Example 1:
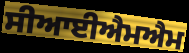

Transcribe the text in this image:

ਸੀਆਈਐਮਐਮ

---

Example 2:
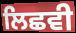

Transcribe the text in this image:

ਲਿਛਵੀ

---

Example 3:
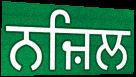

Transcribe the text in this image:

ਨਜ਼ਿਲ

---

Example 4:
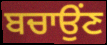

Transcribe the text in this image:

ਬਚਾਉਂਣ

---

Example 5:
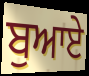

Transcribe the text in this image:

ਬੁਆਏ